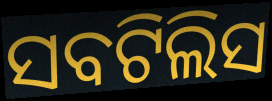
ସବଟିଲିସ